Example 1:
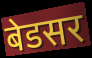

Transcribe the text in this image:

बेडसर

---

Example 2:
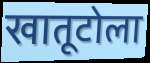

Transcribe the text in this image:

खातूटोला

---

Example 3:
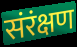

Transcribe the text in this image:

संरंक्षण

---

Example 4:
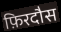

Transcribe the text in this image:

फ़िरदौस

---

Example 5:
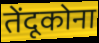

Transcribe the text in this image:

तेंदूकोना